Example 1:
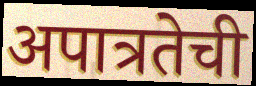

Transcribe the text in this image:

अपात्रतेची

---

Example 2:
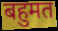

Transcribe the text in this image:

बहुमत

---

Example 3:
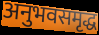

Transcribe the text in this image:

अनुभवसमृद्ध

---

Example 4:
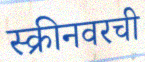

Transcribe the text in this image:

स्क्रीनवरची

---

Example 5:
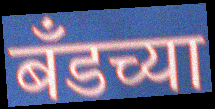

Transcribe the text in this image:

बँडच्या